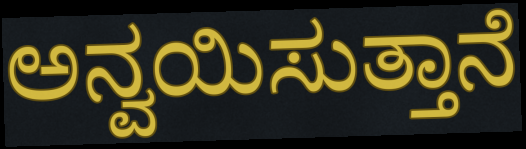
ಅನ್ವಯಿಸುತ್ತಾನೆ